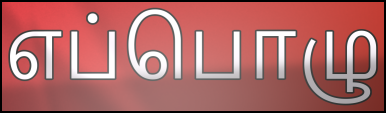
எப்பொழு